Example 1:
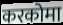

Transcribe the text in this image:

करकोमा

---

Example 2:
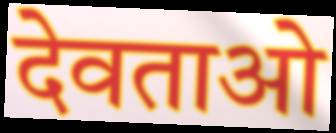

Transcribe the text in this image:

देवताओ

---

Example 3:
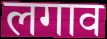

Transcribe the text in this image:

लगाव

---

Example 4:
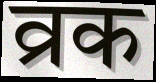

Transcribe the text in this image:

व्रक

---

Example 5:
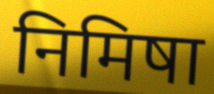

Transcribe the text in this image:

निमिषा